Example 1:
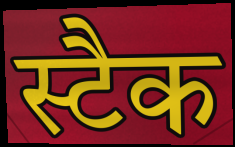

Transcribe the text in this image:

स्टैक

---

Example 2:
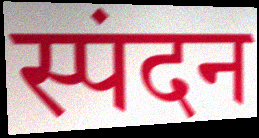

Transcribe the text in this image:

स्पंदन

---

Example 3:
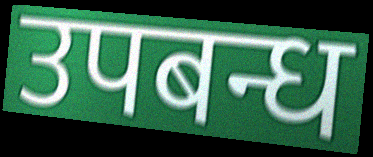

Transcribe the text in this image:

उपबन्ध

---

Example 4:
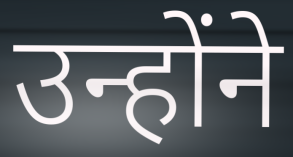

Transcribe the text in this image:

उन्होंने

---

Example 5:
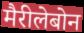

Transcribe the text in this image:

मैरीलेबोन